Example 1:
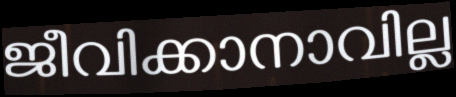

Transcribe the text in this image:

ജീവിക്കാനാവില്ല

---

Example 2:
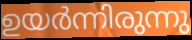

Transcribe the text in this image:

ഉയർന്നിരുന്നു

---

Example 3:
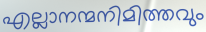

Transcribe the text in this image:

എല്ലാനന്മനിമിത്തവും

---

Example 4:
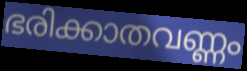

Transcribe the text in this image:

ഭരിക്കാതവണ്ണം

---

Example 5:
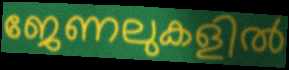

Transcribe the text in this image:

ജേണലുകളിൽ